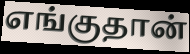
எங்குதான்